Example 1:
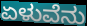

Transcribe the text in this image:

ಏಳುವೆನು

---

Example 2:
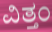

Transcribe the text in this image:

ವಿತ್ತಂ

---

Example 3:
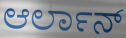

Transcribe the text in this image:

ಆರ್ಲಾನ್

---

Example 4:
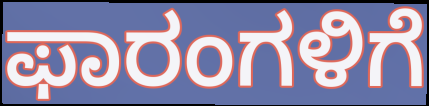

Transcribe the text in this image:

ಫಾರಂಗಳಿಗೆ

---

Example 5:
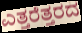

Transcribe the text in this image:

ಎತ್ತರೆತ್ತರದ